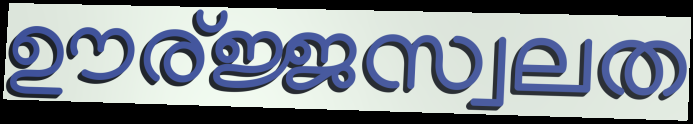
ഊര്ജ്ജസ്വലത